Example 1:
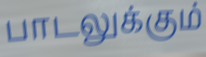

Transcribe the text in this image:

பாடலுக்கும்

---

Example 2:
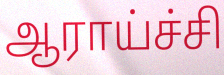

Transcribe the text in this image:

ஆராய்ச்சி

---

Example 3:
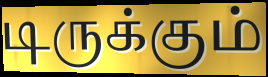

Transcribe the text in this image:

டிருக்கும்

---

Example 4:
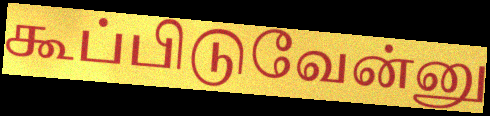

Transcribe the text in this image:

கூப்பிடுவேன்னு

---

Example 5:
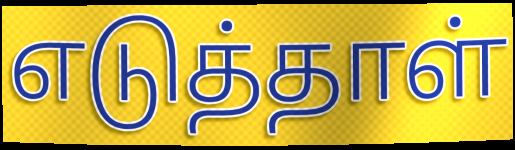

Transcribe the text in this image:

எடுத்தாள்